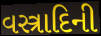
વસ્ત્રાદિની